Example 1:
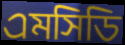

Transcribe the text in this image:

এমসিডি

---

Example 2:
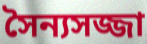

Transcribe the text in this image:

সৈন্যসজ্জা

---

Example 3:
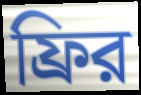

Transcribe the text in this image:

ফ্রির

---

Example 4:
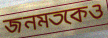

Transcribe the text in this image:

জনমতকেও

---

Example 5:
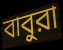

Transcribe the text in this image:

বাবুরা